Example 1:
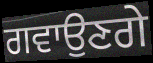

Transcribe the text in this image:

ਗਵਾਉਣਗੇ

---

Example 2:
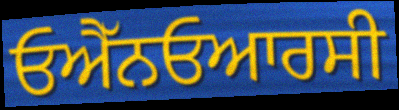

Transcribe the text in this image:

ਓਐੱਨਓਆਰਸੀ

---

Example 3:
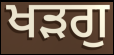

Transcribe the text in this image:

ਖੜਗੁ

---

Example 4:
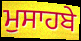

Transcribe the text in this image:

ਮੁਸਾਹਬੇ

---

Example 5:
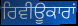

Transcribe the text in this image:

ਰਿਵੀਊਕਾਰਾਂ